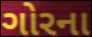
ગોરના